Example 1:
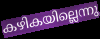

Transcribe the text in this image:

കഴികയില്ലെന്നു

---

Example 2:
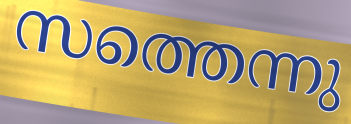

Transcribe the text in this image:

സത്തെന്നു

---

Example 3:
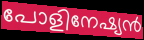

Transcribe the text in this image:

പോളിനേഷ്യൻ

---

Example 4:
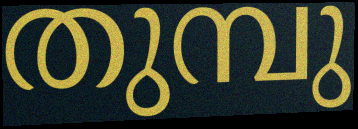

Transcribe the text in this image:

തുമ്പു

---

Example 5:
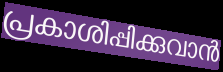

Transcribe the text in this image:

പ്രകാശിപ്പിക്കുവാൻ